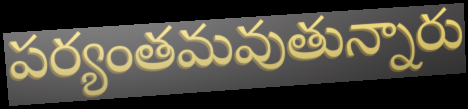
పర్యంతమవుతున్నారు